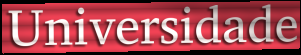
Universidade